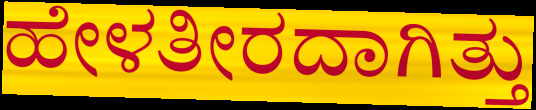
ಹೇಳತೀರದಾಗಿತ್ತು